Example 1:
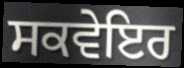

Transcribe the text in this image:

ਸਕਵੇਇਰ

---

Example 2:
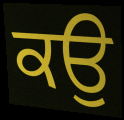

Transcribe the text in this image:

ਕਉੁ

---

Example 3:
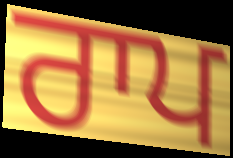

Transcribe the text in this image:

ਰਾਪ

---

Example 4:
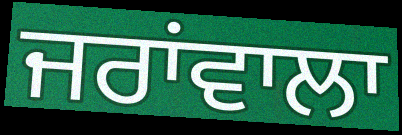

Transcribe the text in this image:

ਜਰਾਂਵਾਲਾ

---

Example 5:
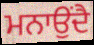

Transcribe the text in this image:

ਮਨਾਉਂਦੈ